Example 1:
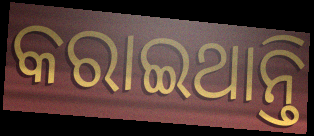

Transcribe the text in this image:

କରାଇଥାନ୍ତି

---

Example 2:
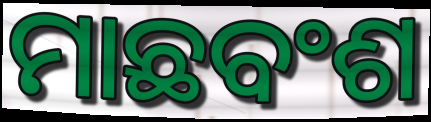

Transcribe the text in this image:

ମାଛବଂଶ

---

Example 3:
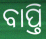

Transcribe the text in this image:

ବାପ୍ତି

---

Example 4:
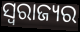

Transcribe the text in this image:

ସ୍ବରାଜ୍ୟର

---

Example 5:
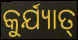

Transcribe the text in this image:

କୁର୍ଯ୍ୟାତ୍